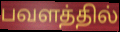
பவளத்தில்